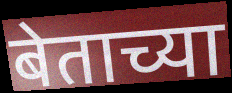
बेताच्या